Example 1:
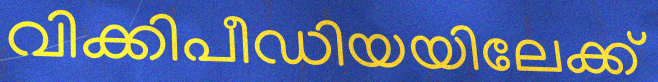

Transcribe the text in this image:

വിക്കിപീഡിയയിലേക്ക്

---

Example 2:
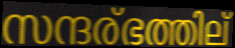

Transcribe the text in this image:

സന്ദര്ഭത്തില്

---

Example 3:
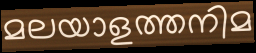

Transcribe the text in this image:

മലയാളത്തനിമ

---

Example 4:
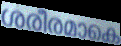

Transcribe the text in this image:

ശരീരമാകെ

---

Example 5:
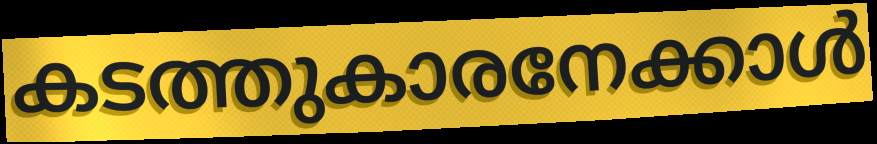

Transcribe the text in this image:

കടത്തുകാരനേക്കാൾ